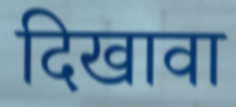
दिखावा